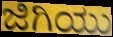
ಜಿಗಿಯು